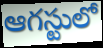
ఆగస్టులో